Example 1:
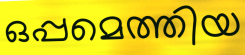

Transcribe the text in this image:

ഒപ്പമെത്തിയ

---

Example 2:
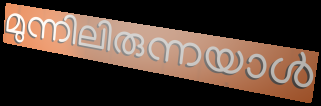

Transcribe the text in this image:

മുന്നിലിരുന്നയാൾ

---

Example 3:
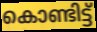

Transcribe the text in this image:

കൊണ്ടിട്ട്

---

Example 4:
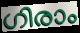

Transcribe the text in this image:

ഗിരാം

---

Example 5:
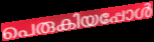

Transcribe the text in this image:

പെരുകിയപ്പോൾ